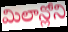
మిలాన్లోని